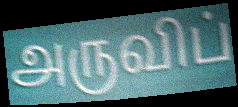
அருவிப்